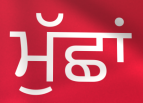
ਮੁੱਛਾਂ